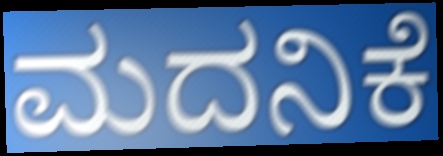
ಮದನಿಕೆ